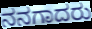
ನನಗಾದರು